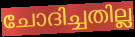
ചോദിച്ചതില്ല